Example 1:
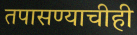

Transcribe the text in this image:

तपासण्याचीही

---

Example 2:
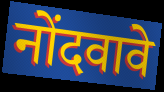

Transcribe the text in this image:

नोंदवावे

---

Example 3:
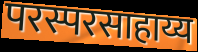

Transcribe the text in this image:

परस्परसाहाय्य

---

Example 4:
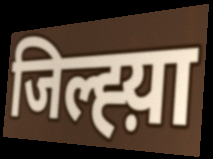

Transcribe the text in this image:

जिल्ह्य़ा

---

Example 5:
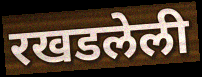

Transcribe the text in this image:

रखडलेली